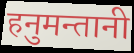
हनुमन्तानी